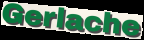
Gerlache